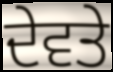
ਦੇਵਤੇ